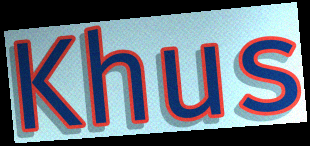
Khus